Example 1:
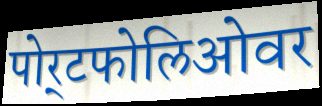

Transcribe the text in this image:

पोर्टफोलिओवर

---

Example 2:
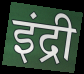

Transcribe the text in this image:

इंद्री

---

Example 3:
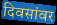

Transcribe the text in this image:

दिवसांवर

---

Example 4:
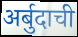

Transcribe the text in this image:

अर्बुदाची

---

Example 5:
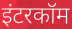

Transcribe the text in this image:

इंटरकॉम